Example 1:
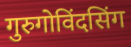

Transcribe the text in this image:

गुरुगोविंदसिंग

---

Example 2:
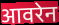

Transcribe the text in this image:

आवरेन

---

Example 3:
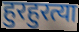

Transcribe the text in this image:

हुरहुरत्या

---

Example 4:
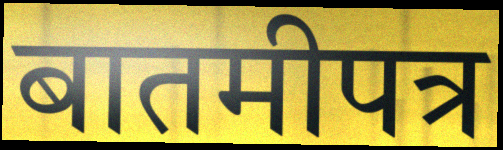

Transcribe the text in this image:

बातमीपत्र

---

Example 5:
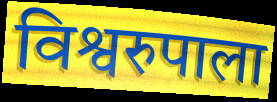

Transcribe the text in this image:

विश्वरुपाला